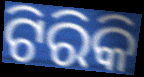
ଟିରିକି